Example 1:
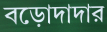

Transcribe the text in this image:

বড়োদাদার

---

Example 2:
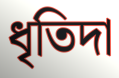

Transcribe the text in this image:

ধৃতিদা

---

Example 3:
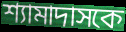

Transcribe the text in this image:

শ্যামাদাসকে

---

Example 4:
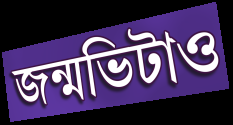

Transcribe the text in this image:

জন্মভিটাও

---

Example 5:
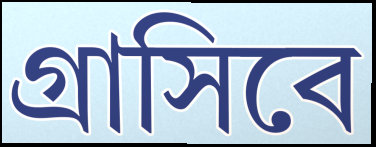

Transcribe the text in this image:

গ্রাসিবে